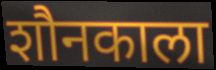
शौनकाला